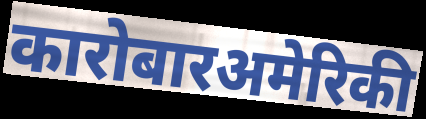
कारोबारअमेरिकी